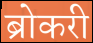
ब्रोकरी